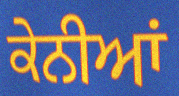
ਕੇਨੀਆਂ